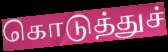
கொடுத்துச்